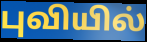
புவியில்